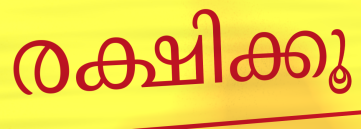
രക്ഷിക്കൂ